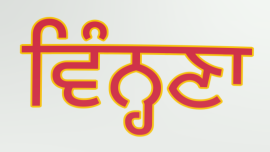
ਵਿੰਨ੍ਹਣਾ